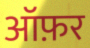
ऑफ़र